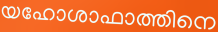
യഹോശാഫാത്തിനെ